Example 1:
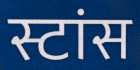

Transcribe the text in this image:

स्टांस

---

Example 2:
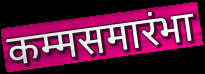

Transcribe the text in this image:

कम्मसमारंभा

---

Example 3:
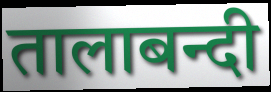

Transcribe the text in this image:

तालाबन्दी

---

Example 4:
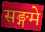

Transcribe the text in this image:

सङ्गमे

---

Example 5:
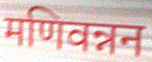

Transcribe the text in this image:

मणिवन्नन